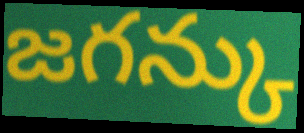
జగన్కు